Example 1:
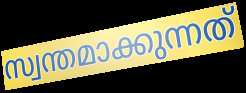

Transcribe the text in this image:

സ്വന്തമാക്കുന്നത്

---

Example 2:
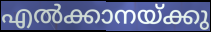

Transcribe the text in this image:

എൽക്കാനയ്ക്കു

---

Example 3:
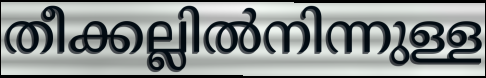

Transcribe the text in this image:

തീക്കല്ലിൽനിന്നുള്ള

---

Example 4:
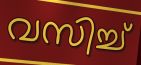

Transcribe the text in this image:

വസിച്ച്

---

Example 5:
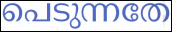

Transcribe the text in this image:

പെടുന്നതേ